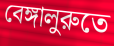
বেঙ্গালুরুতে